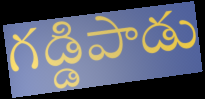
గడ్డిపాడు